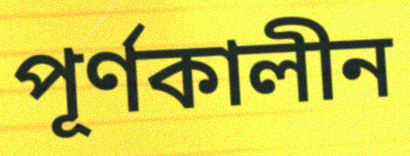
পূৰ্ণকালীন